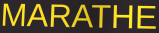
MARATHE